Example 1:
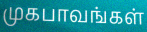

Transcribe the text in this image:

முகபாவங்கள்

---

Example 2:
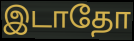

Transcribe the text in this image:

இடாதோ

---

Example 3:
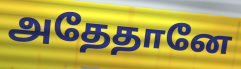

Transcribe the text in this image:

அதேதானே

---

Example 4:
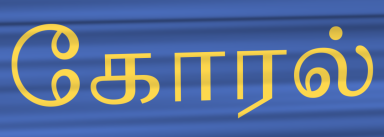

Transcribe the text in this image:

கோரல்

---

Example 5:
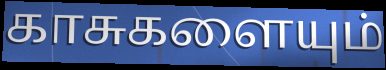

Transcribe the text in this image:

காசுகளையும்